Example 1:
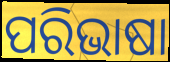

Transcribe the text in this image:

ପରିଭାଷା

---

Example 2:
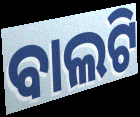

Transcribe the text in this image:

ବାଲଟି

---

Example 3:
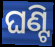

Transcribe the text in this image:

ଘଣ୍ଟି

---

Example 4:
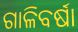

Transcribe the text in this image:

ଗାଳିବର୍ଷା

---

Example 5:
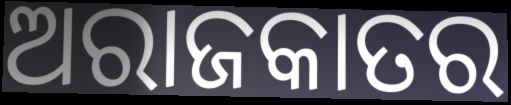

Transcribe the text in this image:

ଅରାଜକାତର